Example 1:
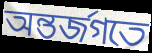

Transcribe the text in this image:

অন্তর্জগতে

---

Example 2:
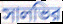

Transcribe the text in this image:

সালভির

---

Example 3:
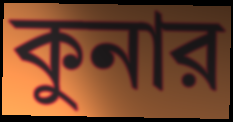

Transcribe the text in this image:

কুনার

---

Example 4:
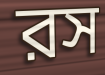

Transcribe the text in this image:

রস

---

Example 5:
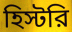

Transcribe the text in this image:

হিস্টরি